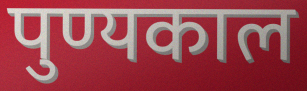
पुण्यकाल